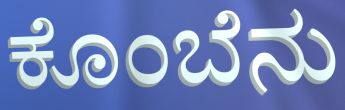
ಕೊಂಬೆನು